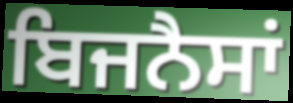
ਬਿਜਨੈਸਾਂ